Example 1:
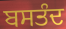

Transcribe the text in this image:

ਬਸਤੰਦ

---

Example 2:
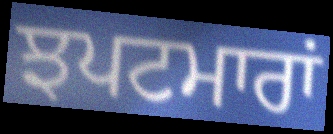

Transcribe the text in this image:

ਝਪਟਮਾਰਾਂ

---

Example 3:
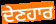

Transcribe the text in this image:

ਦੇਣਹਾਰ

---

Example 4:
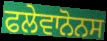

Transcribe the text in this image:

ਫਲੇਵਾਨੋਨਸ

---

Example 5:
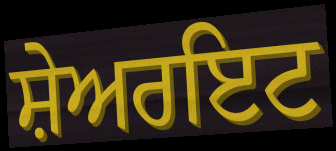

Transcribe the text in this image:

ਸ਼ੇਅਰਇਟ